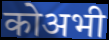
कोअभी